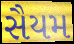
સૈયમ